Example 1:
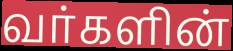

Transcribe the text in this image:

வர்களின்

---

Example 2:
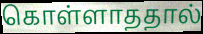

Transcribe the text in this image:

கொள்ளாததால்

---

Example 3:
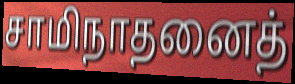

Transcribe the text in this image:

சாமிநாதனைத்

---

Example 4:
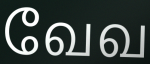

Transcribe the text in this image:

வேவ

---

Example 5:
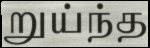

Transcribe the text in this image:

றுய்ந்த